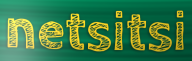
netsitsi